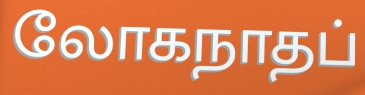
லோகநாதப்